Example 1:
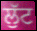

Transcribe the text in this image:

ਲੁੱਟ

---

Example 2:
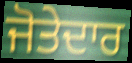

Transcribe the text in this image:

ਜੋਤੇਦਾਰ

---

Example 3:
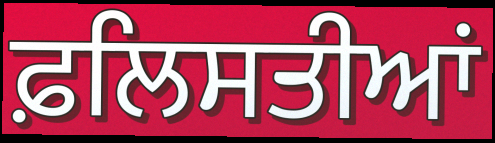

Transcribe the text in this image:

ਫ਼ਲਿਸਤੀਆਂ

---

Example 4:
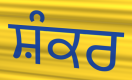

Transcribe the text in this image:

ਸ਼ੰਕਰ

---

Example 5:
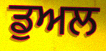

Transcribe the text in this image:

ਡੁਅਲ